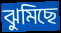
ঝুমিছে